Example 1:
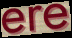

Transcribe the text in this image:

ere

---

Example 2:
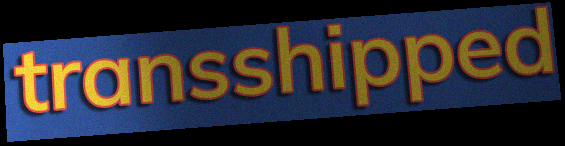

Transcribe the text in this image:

transshipped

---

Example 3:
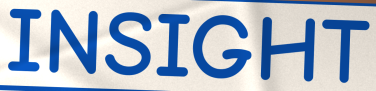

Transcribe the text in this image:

INSIGHT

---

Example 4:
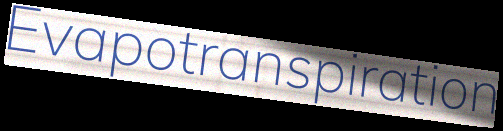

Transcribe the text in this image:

Evapotranspiration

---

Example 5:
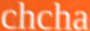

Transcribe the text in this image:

chcha